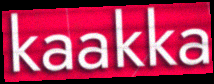
kaakka